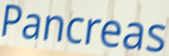
Pancreas